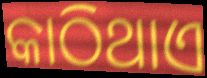
କାଠିଥାଏ